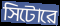
সিটোৱে